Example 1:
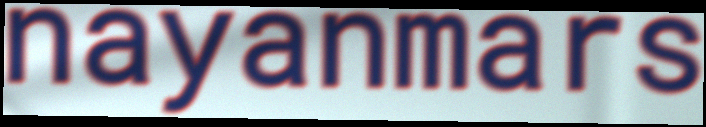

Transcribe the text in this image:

nayanmars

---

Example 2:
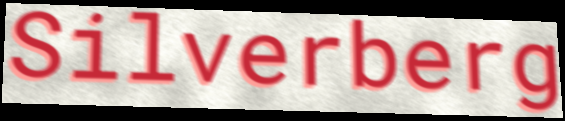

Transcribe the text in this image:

Silverberg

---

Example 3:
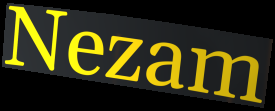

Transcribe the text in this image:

Nezam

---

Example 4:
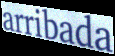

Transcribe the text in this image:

arribada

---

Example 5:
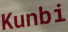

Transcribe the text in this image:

Kunbi